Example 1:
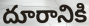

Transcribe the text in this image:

దూరానికి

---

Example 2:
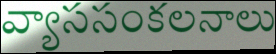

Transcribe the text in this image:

వ్యాససంకలనాలు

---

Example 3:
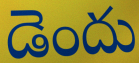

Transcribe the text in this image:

డెందు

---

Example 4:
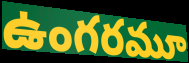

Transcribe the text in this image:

ఉంగరమూ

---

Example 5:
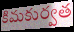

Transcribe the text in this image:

కిమకుర్వత